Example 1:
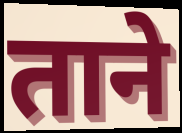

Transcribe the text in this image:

ताने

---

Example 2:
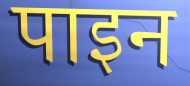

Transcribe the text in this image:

पाइन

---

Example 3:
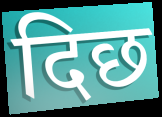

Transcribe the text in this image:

दिछ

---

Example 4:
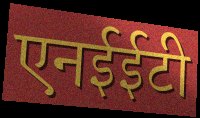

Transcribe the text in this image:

एनईईटी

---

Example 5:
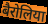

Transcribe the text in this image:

बैरोलिया